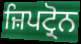
ਜ਼ਿਪਟ੍ਰੋਨ